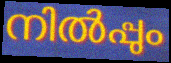
നിൽപ്പും